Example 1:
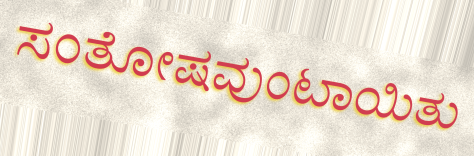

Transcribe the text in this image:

ಸಂತೋಷವುಂಟಾಯಿತು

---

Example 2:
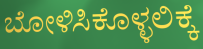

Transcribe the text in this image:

ಬೋಳಿಸಿಕೊಳ್ಳಲಿಕ್ಕೆ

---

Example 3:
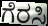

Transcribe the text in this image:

ಗೆರಸಿ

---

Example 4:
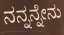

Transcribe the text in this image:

ನನ್ನನ್ನೇನು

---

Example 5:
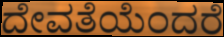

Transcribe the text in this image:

ದೇವತೆಯೆಂದರೆ